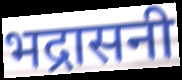
भद्रासनी